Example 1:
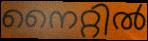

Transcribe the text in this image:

നൈറ്റിൽ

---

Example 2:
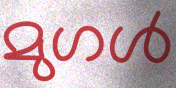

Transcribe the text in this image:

മുഗൾ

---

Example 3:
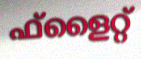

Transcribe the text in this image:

ഫ്ളൈറ്റ്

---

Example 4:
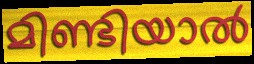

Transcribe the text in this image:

മിണ്ടിയാൽ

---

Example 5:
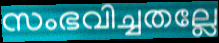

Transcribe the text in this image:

സംഭവിച്ചതല്ലേ